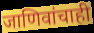
जाणिवांचाही